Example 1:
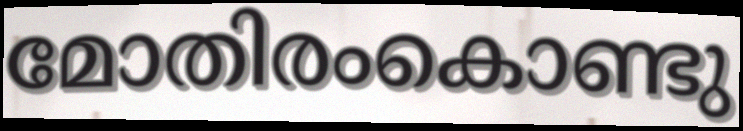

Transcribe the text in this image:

മോതിരംകൊണ്ടു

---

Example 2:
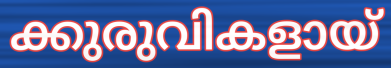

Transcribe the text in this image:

ക്കുരുവികളായ്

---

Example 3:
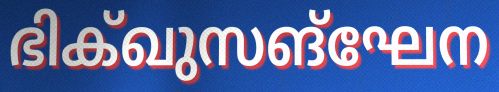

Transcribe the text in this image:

ഭിക്ഖുസങ്ഘേന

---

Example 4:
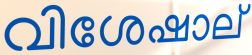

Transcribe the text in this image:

വിശേഷാല്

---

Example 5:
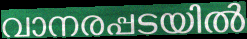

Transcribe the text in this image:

വാനരപ്പടയിൽ